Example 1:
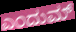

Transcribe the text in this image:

ಎಂದುಮ್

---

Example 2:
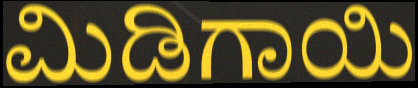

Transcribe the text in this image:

ಮಿಡಿಗಾಯಿ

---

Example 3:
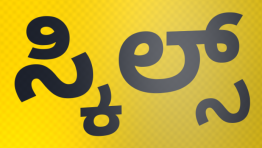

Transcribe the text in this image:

ಸ್ಕಿಲ್ಸ್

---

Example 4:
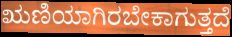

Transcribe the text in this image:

ಋಣಿಯಾಗಿರಬೇಕಾಗುತ್ತದೆ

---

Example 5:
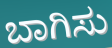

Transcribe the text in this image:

ಬಾಗಿಸು